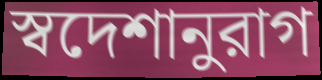
স্বদেশানুরাগ